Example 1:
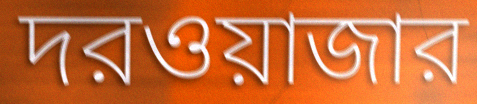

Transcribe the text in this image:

দরওয়াজার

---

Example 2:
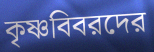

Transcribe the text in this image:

কৃষ্ণবিবরদের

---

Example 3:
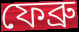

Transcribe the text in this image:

ফেব্রু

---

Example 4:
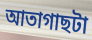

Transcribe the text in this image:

আতাগাছটা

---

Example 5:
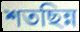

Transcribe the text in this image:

শতছিন্ন